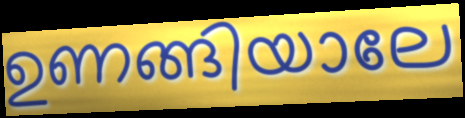
ഉണങ്ങിയാലേ